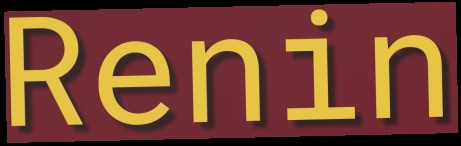
Renin